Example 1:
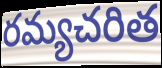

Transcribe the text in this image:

రమ్యచరిత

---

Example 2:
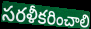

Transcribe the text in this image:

సరళీకరించాలి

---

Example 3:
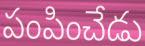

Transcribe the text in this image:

పంపించేడు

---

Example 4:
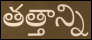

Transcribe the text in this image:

తత్తాన్ని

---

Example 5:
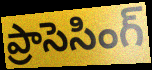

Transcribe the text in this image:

ప్రాసెసింగ్